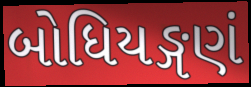
બોધિયઙ્ગણં